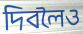
দিবলৈও